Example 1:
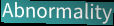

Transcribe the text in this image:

Abnormality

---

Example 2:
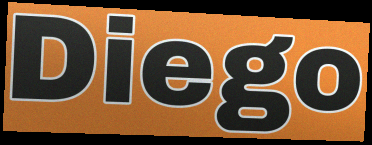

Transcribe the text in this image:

Diego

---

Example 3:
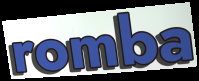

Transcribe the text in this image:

romba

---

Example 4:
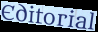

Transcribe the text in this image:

Editorial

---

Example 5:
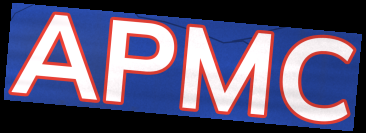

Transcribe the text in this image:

APMC